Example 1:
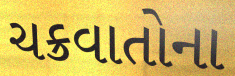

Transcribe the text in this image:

ચક્રવાતોના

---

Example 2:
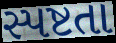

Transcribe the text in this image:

સ્પષ્ટતા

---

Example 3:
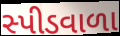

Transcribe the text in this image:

સ્પીડવાળા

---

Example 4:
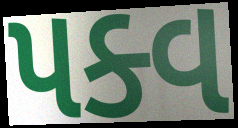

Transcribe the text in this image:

પક્વ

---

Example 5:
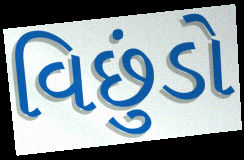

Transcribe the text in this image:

વિછુંડો